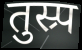
तुस्र्प